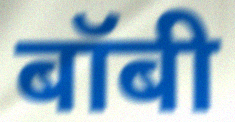
बॉबी